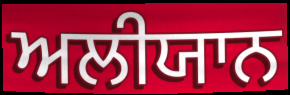
ਅਲੀਯਾਨ